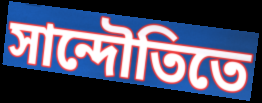
সান্দৌতিতে